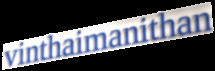
vinthaimanithan